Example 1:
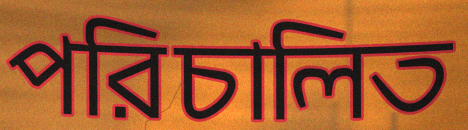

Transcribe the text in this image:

পরিচালিত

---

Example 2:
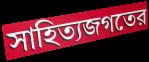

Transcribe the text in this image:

সাহিত্যজগতের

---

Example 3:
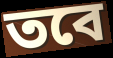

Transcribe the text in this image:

তবে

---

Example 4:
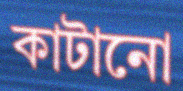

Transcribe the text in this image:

কাটানো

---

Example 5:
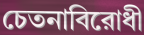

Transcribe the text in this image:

চেতনাবিরোধী